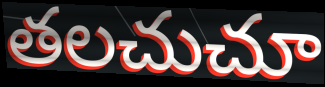
తలచుచూ